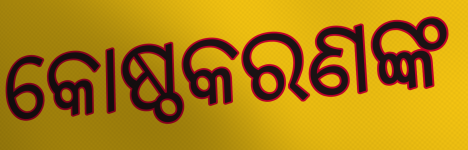
କୋଷ୍ଠକରଣଙ୍କ